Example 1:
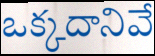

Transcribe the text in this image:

ఒక్కదానివే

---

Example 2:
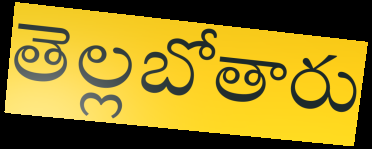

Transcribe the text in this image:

తెల్లబోతారు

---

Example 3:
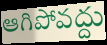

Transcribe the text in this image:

ఆగిపోవద్దు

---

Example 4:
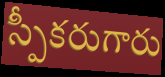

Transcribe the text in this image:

స్పీకరుగారు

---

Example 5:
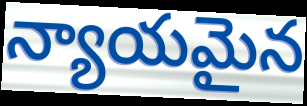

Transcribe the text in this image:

న్యాయమైన